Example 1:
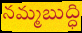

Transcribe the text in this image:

నమ్మబుద్ధి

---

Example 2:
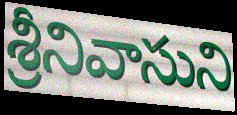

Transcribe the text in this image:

శ్రీనివాసుని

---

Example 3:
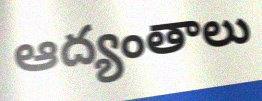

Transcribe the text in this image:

ఆద్యంతాలు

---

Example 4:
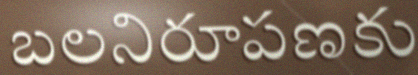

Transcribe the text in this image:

బలనిరూపణకు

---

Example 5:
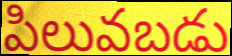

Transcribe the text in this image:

పిలువబడు